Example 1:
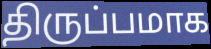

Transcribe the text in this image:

திருப்பமாக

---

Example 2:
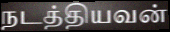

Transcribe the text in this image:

நடத்தியவன்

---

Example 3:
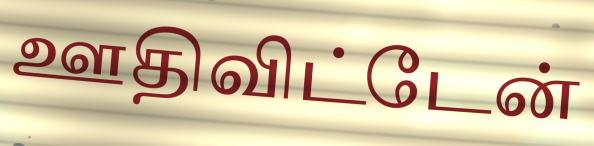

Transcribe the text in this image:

ஊதிவிட்டேன்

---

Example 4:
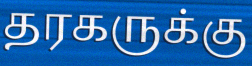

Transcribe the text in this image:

தரகருக்கு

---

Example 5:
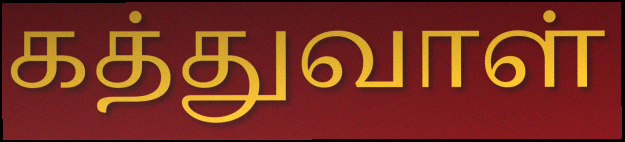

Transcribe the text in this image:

கத்துவாள்